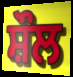
ਸ਼ੌਲ